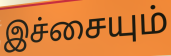
இச்சையும்